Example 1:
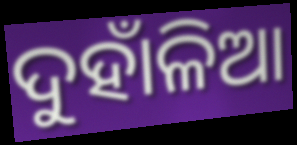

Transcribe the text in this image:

ଦୁହାଁଳିଆ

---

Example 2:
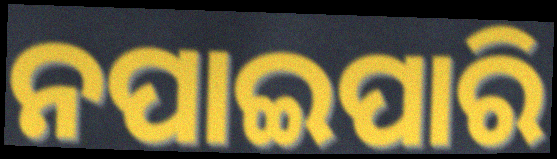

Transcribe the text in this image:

ନପାଇପାରି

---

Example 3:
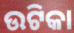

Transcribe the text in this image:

ଉଟିକା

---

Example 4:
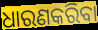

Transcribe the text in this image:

ଧାରଣକରିବା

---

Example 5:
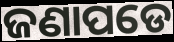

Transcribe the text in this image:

ଜଣାପଡେ